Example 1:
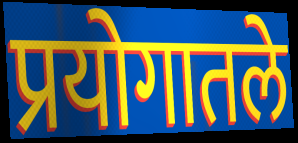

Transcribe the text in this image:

प्रयोगातले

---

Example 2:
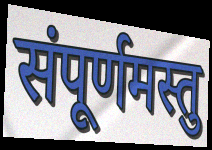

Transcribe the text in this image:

संपूर्णमस्तु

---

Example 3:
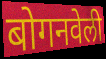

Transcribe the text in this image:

बोगनवेली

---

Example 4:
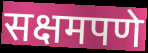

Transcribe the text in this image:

सक्षमपणे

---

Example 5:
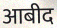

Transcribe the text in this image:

आबीद